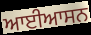
ਆਈਆਸਨ